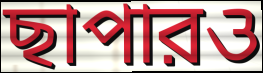
ছাপারও